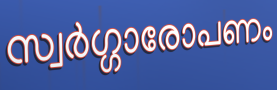
സ്വർഗ്ഗാരോപണം